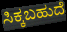
ಸಿಕ್ಕಬಹುದೆ